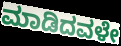
ಮಾಡಿದವಳೇ